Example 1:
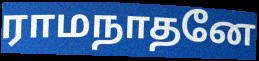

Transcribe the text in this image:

ராமநாதனே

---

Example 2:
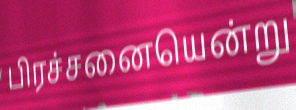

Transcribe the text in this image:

பிரச்சனையென்று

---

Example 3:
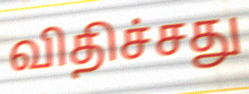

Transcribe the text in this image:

விதிச்சது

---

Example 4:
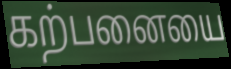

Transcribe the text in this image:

கற்பனையை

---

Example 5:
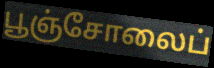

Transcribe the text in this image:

பூஞ்சோலைப்